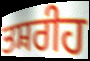
ਤਸ਼ਰੀਹ